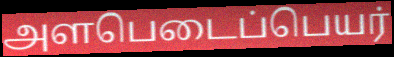
அளபெடைப்பெயர்